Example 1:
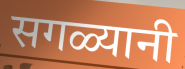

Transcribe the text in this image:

सगळ्यानी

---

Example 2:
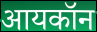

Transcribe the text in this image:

आयकॉन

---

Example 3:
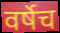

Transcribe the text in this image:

वर्षेच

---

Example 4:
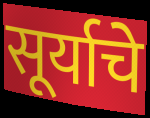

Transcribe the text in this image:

सूर्याचे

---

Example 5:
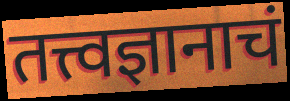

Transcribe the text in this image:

तत्त्वज्ञानाचं